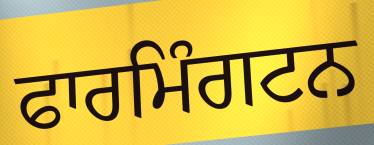
ਫਾਰਮਿੰਗਟਨ